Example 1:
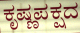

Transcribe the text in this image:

ಕೃಷ್ಣಪಕ್ಷದ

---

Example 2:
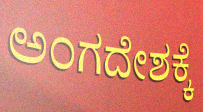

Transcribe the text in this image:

ಅಂಗದೇಶಕ್ಕೆ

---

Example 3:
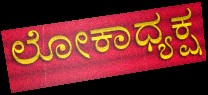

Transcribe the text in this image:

ಲೋಕಾಧ್ಯಕ್ಷ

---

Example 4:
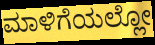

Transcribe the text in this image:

ಮಾಳಿಗೆಯಲ್ಲೋ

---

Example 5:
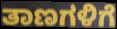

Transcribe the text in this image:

ತಾಣಗಳಿಗೆ